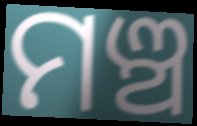
ମଞ୍ଚ